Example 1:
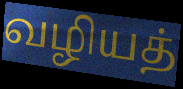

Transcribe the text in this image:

வழியத்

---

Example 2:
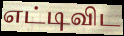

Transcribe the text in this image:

எட்டிவிட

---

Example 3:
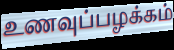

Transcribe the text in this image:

உணவுப்பழக்கம்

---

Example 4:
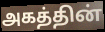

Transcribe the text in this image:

அகத்தின்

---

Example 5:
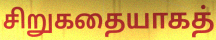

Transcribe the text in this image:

சிறுகதையாகத்